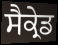
ਸੈਕ੍ਰੇਡ